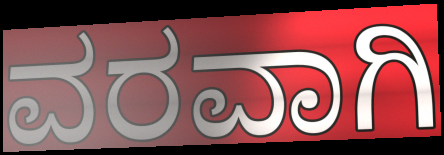
ವರವಾಗಿ